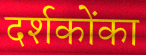
दर्शकोंका